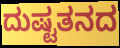
ದುಷ್ಟತನದ